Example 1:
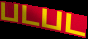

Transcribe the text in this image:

படபட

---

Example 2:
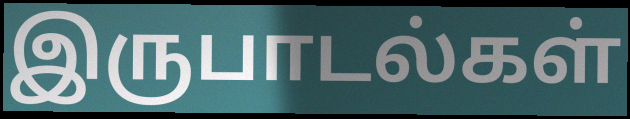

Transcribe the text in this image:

இருபாடல்கள்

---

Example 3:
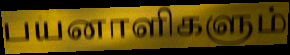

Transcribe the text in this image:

பயனாளிகளும்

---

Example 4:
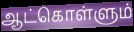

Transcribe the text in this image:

ஆட்கொள்ளும்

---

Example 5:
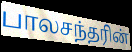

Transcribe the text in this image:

பாலசந்தரின்